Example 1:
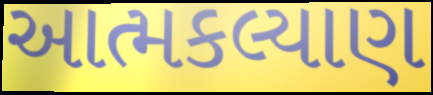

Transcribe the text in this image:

આત્મકલ્યાણ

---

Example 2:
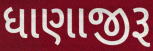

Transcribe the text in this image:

ધાણાજીરૂ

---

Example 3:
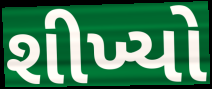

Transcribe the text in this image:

શીખ્યો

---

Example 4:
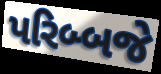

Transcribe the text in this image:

પરિબ્બજે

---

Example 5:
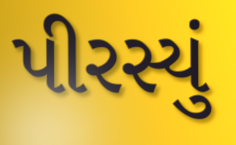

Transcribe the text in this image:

પીરસ્યું